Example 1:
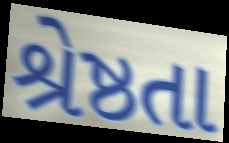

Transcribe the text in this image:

શ્રેષ્ઠતા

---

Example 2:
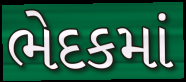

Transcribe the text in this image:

ભેદકમાં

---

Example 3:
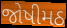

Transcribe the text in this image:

જોષીમઠ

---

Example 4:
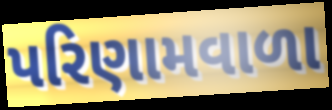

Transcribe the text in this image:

પરિણામવાળા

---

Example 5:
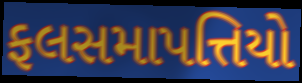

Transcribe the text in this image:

ફલસમાપત્તિયો